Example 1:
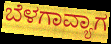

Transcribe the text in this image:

ಬೆಳಗಾವ್ಯಾಗ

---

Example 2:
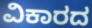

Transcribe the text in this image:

ವಿಕಾರದ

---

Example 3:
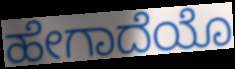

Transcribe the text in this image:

ಹೇಗಾದೆಯೊ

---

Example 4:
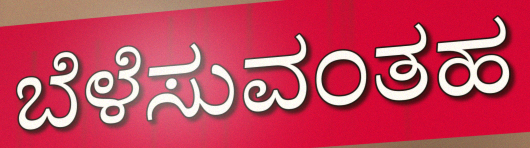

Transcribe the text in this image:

ಬೆಳೆಸುವಂತಹ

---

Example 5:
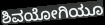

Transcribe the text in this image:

ಶಿವಯೋಗಿಯೂ